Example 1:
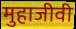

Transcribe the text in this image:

मुहाजीवी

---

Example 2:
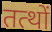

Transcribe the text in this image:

तत्थों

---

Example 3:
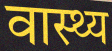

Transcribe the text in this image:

वास्थ्य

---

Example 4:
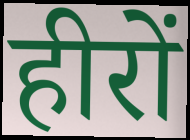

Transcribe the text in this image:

हीरों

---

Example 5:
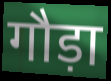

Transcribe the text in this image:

गौड़ा